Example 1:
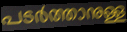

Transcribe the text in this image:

പടർത്താനുള്ള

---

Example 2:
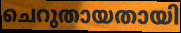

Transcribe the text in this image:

ചെറുതായതായി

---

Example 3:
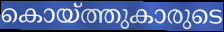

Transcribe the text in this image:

കൊയ്ത്തുകാരുടെ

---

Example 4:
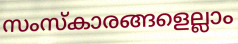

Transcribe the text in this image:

സംസ്കാരങ്ങളെല്ലാം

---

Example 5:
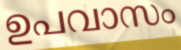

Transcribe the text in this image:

ഉപവാസം